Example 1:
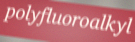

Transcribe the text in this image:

polyfluoroalkyl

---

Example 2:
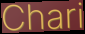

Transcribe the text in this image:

Chari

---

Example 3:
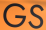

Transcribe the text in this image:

GS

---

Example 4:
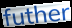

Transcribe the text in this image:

futher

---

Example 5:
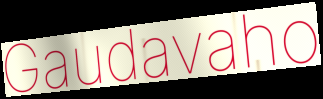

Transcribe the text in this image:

Gaudavaho